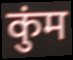
कुंम